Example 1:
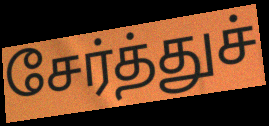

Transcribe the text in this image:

சேர்த்துச்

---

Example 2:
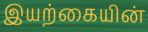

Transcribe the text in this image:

இயற்கையின்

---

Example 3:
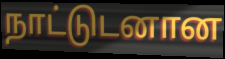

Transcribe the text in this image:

நாட்டுடனான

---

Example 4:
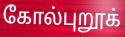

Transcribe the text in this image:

கோல்புறூக்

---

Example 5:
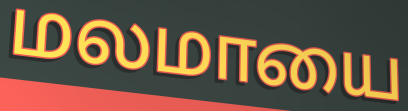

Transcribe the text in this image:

மலமாயை